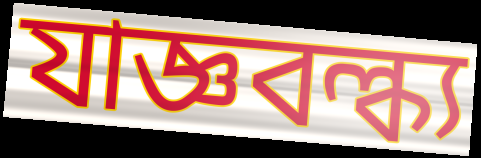
যাজ্ঞবল্ক্য